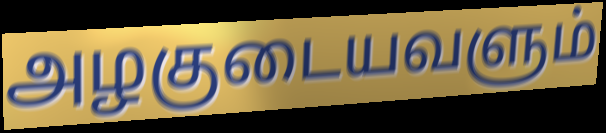
அழகுடையவளும்